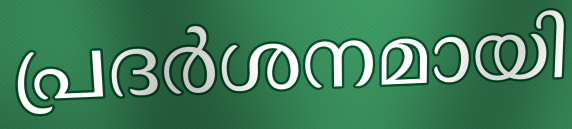
പ്രദർശനമായി